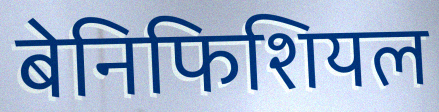
बेनिफिशियल